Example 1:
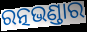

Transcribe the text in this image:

ରତ୍ନଭଣ୍ଡାର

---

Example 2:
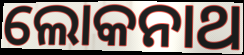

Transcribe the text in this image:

ଲୋକନାଥ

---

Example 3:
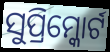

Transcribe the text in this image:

ସୁପ୍ରିମ୍କୋର୍ଟ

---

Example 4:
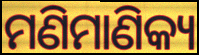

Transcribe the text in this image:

ମଣିମାଣିକ୍ୟ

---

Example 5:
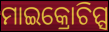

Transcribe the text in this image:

ମାଇକ୍ରୋଚିପ୍ସ